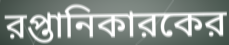
রপ্তানিকারকের